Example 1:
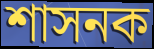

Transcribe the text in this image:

শাসনক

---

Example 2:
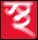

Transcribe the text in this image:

স্থ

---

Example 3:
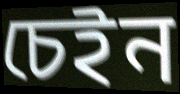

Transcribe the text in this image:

চেইন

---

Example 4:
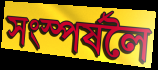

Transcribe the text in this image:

সংস্পৰ্ষলৈ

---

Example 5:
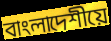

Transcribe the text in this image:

বাংলাদেশীয়ে